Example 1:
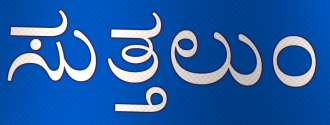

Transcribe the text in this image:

ಸುತ್ತಲುಂ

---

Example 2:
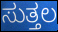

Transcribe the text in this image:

ಸುತ್ತಲ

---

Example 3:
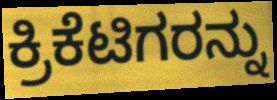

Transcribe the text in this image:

ಕ್ರಿಕೆಟಿಗರನ್ನು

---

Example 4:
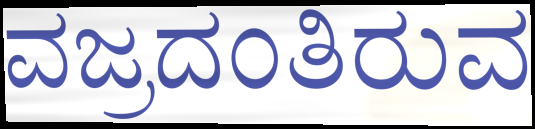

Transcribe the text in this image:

ವಜ್ರದಂತಿರುವ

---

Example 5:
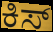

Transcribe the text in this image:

ಕಿಸ್